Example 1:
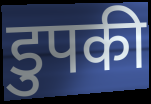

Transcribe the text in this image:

डुपकी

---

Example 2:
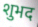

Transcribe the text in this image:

शुभद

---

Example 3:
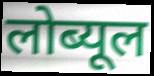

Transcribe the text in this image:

लोब्यूल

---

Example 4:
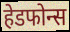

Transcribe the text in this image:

हेडफोन्स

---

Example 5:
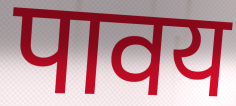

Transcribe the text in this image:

पावय